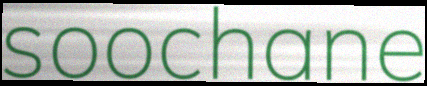
soochane